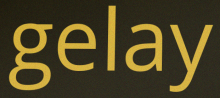
gelay